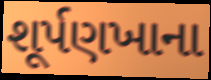
શૂર્પણખાના